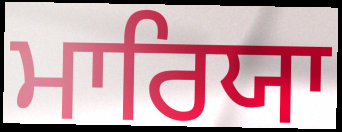
ਮਾਰਿਯਾ